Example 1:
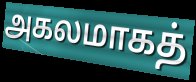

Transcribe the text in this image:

அகலமாகத்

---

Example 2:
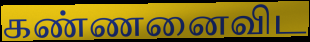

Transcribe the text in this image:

கண்ணனைவிட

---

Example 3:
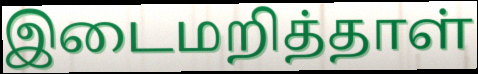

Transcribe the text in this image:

இடைமறித்தாள்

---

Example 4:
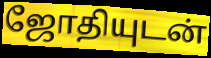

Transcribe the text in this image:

ஜோதியுடன்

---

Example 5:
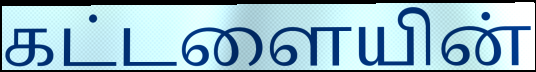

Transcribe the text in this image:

கட்டளையின்